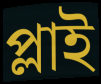
প্লাই